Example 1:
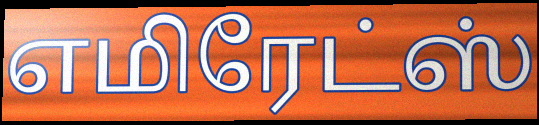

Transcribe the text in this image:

எமிரேட்ஸ்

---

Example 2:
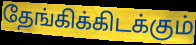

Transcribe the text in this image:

தேங்கிக்கிடக்கும்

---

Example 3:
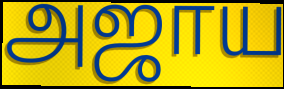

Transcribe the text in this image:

அஜாய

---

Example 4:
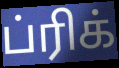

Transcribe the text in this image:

ப்ரிக்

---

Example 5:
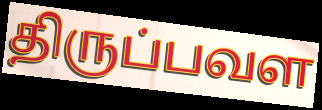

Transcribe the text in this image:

திருப்பவள